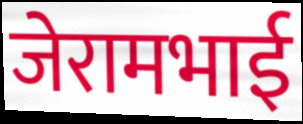
जेरामभाई